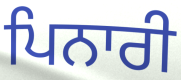
ਪਿਨਾਰੀ